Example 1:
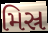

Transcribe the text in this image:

મિસ્ર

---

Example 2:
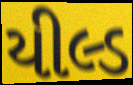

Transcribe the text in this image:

યીલ્ડ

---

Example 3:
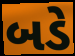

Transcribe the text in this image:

બડે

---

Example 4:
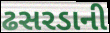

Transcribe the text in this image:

ઢસરડાની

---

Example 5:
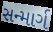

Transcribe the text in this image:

સન્માર્ગ